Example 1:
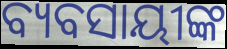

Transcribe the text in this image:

ବ୍ୟବସାୟୀଙ୍କ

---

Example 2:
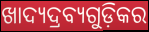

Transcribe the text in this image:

ଖାଦ୍ୟଦ୍ରବ୍ୟଗୁଡ଼ିକର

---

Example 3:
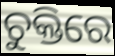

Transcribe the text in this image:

ଚୁକ୍ତିରେ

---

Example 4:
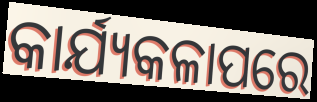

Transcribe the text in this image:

କାର୍ଯ୍ୟକଳାପରେ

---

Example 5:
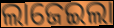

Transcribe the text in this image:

ଲାଜେଇଲା